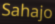
Sahajo